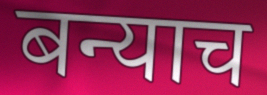
बन्याच